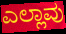
ಎಲ್ಲಾವು